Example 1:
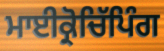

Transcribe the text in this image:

ਮਾਈਕ੍ਰੋਚਿੱਪਿੰਗ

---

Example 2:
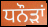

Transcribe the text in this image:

ਧਨੌੜਾਂ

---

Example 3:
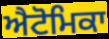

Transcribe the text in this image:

ਐਟੋਮਿਕਾ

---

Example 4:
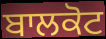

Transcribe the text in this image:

ਬਾਲਕੋਟ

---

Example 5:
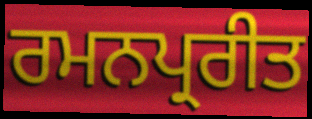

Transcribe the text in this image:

ਰਮਨਪ੍ਰਰੀਤ